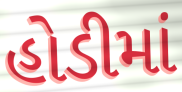
હોડીમાં